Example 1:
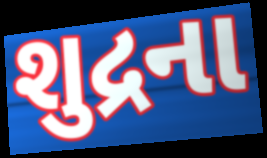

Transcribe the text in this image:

શુદ્રના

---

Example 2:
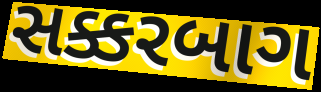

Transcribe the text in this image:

સક્કરબાગ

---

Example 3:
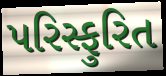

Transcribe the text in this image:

પરિસ્ફુરિત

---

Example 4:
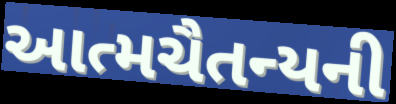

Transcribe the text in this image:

આત્મચૈતન્યની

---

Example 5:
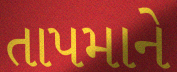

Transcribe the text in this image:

તાપમાને